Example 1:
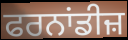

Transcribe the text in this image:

ਫਰਨਾਂਡੀਜ਼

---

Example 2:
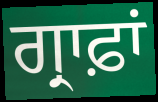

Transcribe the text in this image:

ਗ੍ਰਾਫ਼ਾਂ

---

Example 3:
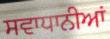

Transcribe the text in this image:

ਸਵਾਧਾਨੀਆਂ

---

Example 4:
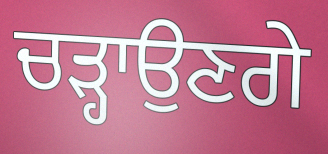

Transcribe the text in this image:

ਚੜ੍ਹਾਉਣਗੇ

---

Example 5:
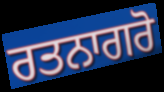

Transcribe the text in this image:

ਰਤਨਾਗਰੋ